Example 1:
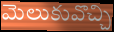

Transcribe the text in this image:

మెలుకువొచ్చి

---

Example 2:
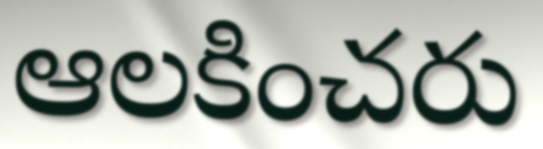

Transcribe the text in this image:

ఆలకించరు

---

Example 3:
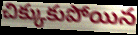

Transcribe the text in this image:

చిక్కుకుపోయిన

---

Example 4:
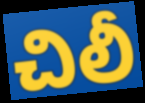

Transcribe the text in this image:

చిలీ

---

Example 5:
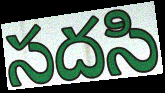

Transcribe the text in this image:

సదసి